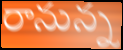
రానున్న